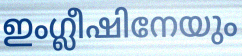
ഇംഗ്ലീഷിനേയും